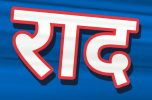
राद